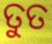
ତୁତ